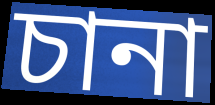
চানা